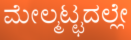
ಮೇಲ್ಮಟ್ಟದಲ್ಲೇ